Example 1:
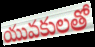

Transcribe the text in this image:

యువకులతో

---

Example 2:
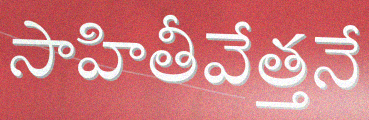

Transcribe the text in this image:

సాహితీవేత్తనే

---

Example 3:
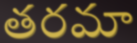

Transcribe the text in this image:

తరమా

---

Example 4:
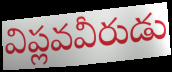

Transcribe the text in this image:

విప్లవవీరుడు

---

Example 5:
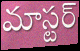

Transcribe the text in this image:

మాస్టర్